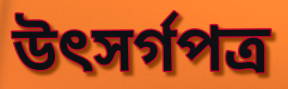
উৎসর্গপত্র